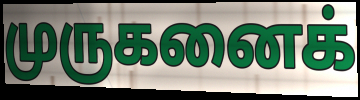
முருகனைக்